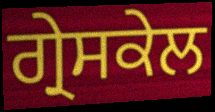
ਗ੍ਰੇਸਕੇਲ